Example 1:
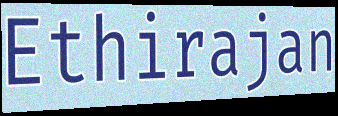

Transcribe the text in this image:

Ethirajan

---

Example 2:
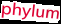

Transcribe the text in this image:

phylum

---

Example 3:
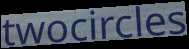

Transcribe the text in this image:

twocircles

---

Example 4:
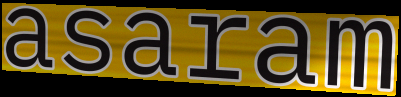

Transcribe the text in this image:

asaram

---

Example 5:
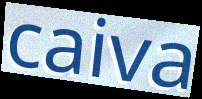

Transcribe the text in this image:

caiva